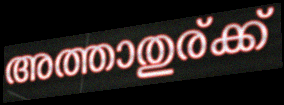
അത്താതുര്ക്ക്